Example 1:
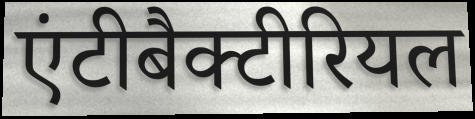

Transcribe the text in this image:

एंटीबैक्टीरियल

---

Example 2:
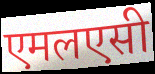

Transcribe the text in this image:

एमलएसी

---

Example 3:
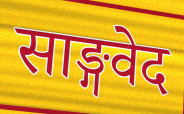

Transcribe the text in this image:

साङ्गवेद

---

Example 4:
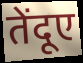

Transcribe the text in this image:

तेंदूए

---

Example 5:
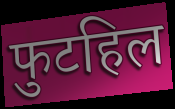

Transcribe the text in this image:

फुटहिल